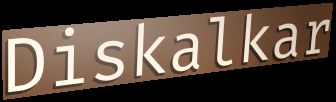
Diskalkar